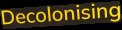
Decolonising